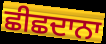
ਛੀਛਦਾਨਾ